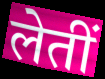
लेतीं